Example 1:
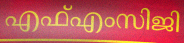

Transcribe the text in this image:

എഫ്എംസിജി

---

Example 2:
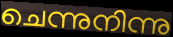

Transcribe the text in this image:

ചെന്നുനിന്നു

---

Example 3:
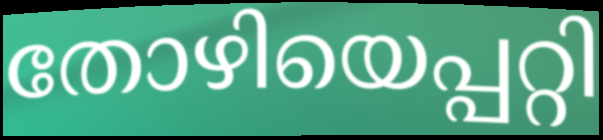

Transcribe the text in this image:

തോഴിയെപ്പറ്റി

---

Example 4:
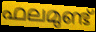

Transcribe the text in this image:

ഫലമുണ്ട്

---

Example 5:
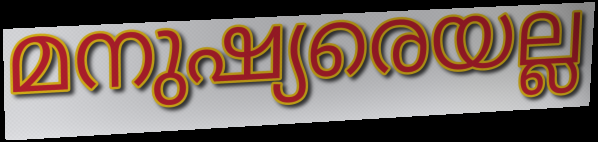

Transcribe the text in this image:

മനുഷ്യരെയല്ല